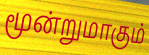
மூன்றுமாகும்